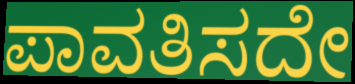
ಪಾವತಿಸದೇ